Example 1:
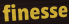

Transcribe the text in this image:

finesse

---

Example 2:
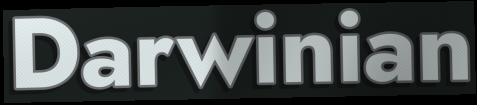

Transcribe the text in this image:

Darwinian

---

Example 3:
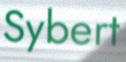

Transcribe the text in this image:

Sybert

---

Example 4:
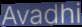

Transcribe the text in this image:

Avadhi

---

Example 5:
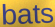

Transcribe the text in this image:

bats